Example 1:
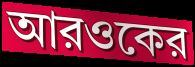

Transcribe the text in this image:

আরওকের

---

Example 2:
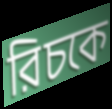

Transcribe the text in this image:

রিচকে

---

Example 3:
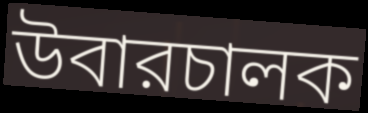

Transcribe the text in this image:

উবারচালক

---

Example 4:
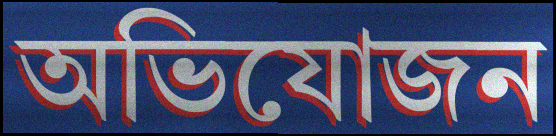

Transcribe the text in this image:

অভিযোজন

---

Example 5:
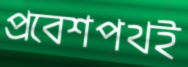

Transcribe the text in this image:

প্রবেশপথই